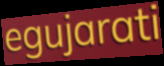
egujarati